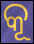
କୂ